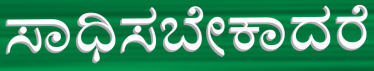
ಸಾಧಿಸಬೇಕಾದರೆ